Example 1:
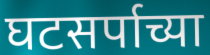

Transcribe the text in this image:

घटसर्पाच्या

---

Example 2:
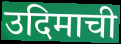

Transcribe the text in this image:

उदिमाची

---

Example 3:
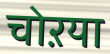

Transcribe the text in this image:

चोऱया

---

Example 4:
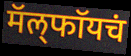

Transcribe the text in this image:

मॅल्फॉयचं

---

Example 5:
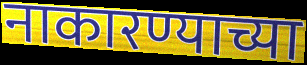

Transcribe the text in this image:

नाकारण्याच्या